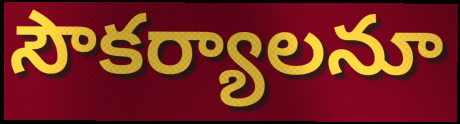
సౌకర్యాలనూ